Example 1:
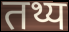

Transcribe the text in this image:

तथ्य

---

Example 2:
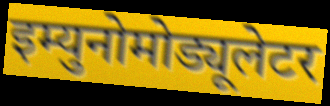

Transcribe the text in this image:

इम्युनोमोड्यूलेटर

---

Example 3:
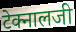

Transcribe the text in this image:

टेक्नालजी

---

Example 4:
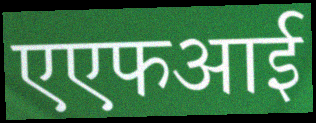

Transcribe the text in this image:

एएफआई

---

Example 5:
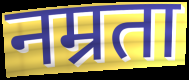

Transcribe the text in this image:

नम्रता